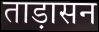
ताड़ासन